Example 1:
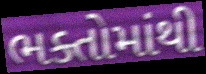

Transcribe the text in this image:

ભક્તોમાંથી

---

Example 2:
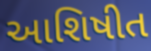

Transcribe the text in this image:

આશિષીત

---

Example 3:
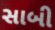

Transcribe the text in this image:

સાબી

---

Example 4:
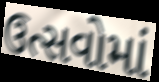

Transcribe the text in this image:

ઉત્સવોમાં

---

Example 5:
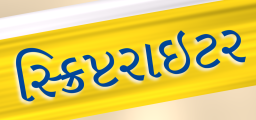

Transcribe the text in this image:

સ્ક્રિપ્ટરાઇટર